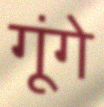
गूंगे